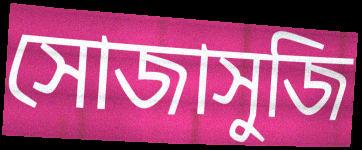
সোজাসুজি